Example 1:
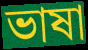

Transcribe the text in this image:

ভাষা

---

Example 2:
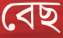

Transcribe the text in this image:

বেছ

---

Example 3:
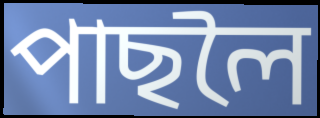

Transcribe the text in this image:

পাছলৈ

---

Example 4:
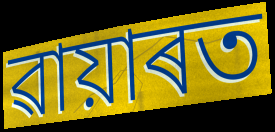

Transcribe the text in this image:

ৱায়াৰত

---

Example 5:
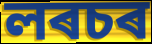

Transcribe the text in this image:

লৰচৰ